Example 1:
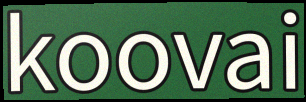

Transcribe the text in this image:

koovai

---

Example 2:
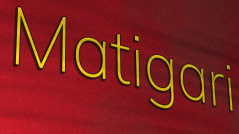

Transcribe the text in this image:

Matigari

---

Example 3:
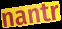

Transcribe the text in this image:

nantr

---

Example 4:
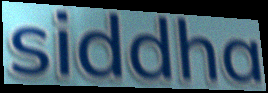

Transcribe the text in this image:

siddha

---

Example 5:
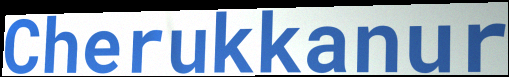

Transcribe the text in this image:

Cherukkanur